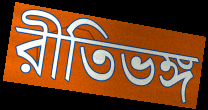
রীতিভঙ্গ